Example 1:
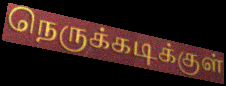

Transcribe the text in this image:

நெருக்கடிக்குள்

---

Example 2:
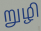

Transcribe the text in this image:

றுழி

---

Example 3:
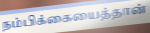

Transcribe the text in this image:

நம்பிக்கையைத்தான்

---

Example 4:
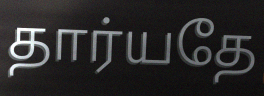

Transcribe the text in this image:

தார்யதே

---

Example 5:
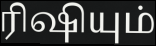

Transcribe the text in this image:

ரிஷியும்